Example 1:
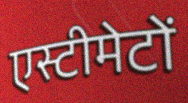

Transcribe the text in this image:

एस्टीमेटों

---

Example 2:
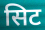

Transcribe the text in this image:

सिट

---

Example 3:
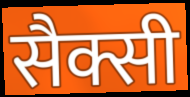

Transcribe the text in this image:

सैक्सी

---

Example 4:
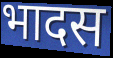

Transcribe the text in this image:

भादस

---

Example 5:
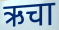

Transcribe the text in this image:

ऋचा